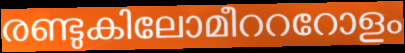
രണ്ടുകിലോമീറററോളം